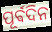
ପୂର୍ଵଦିନ